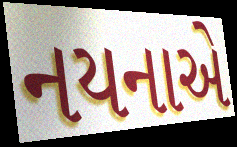
નયનાએ